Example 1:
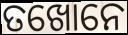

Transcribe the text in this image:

ତଖୋନେ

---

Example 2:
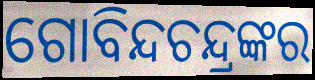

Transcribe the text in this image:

ଗୋବିନ୍ଦଚନ୍ଦ୍ରଙ୍କର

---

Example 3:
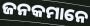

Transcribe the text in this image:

ଜନକମାନେ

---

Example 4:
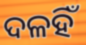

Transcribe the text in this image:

ଦଳହିଁ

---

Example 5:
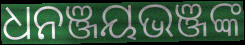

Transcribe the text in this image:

ଧନଞ୍ଜୟଭଞ୍ଜଙ୍କ